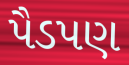
પૈડપણ